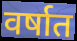
वर्षात